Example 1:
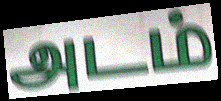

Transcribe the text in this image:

அடம்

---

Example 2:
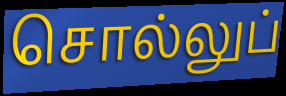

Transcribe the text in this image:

சொல்லுப்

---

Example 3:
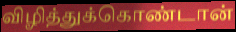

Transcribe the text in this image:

விழித்துக்கொண்டான்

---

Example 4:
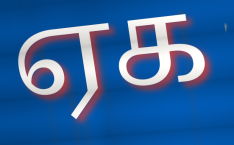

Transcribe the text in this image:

ஏக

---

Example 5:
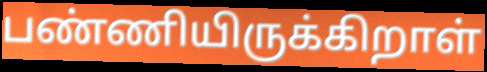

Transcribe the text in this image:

பண்ணியிருக்கிறாள்